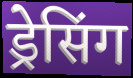
ड्रेसिंग